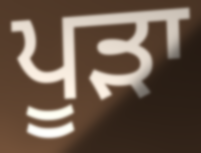
ਪੂੜਾ